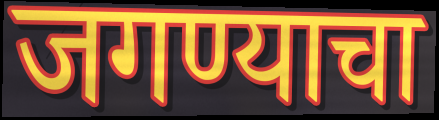
जगण्याचा